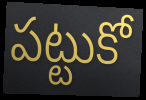
పట్టుకో